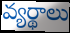
వ్యర్థాలు